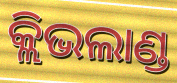
କ୍ଲିଭଲାଣ୍ଡ